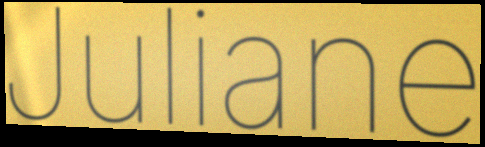
Juliane